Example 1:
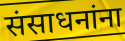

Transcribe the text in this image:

संसाधनांना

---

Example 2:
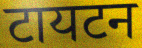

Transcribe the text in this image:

टायटन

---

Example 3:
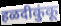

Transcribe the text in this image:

हळदीकुंकू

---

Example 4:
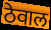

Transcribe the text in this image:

ठेवाल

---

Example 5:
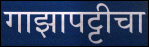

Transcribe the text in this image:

गाझापट्टीचा